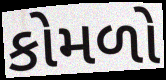
કોમળો